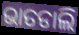
ଭାତଡାଲି